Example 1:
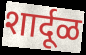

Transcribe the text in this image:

शार्दूळ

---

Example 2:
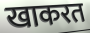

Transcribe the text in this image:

खाकरत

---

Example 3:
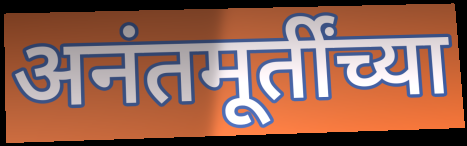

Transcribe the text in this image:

अनंतमूर्तींच्या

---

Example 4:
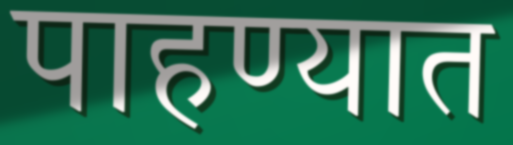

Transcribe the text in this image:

पाहण्यात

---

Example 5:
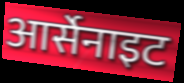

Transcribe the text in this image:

आर्सेनाइट